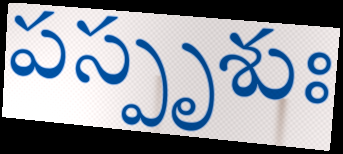
పస్పృశుః